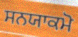
ਸਨਯਾਕਮੋ